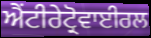
ਐਂਟੀਰੇਟ੍ਰੋਵਾਈਰਲ